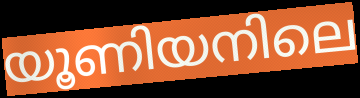
യൂണിയനിലെ